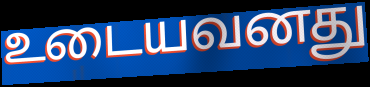
உடையவனது